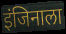
इंजिनाला